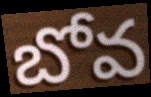
బోవ